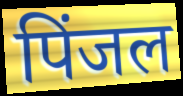
पिंजल